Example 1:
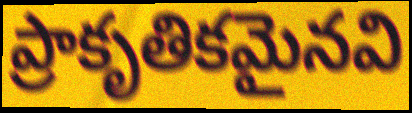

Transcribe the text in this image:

ప్రాకృతికమైనవి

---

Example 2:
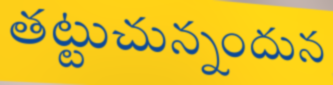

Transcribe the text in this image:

తట్టుచున్నందున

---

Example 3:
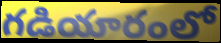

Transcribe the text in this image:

గడియారంలో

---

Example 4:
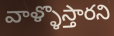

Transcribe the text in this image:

వాళ్ళొస్తారని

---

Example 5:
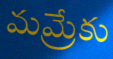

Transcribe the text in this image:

మమ్రేకు